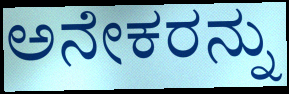
ಅನೇಕರನ್ನು